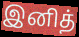
இனித்